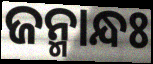
ଜନ୍ମାନ୍ଧଃ